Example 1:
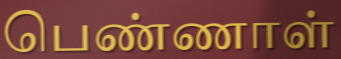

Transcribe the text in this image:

பெண்ணாள்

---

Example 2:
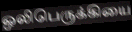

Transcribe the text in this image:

ஒலிபெருக்கியை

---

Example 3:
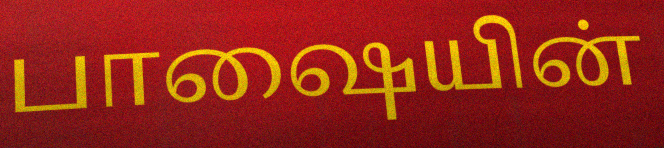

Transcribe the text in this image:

பாஷையின்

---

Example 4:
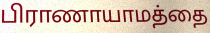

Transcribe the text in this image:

பிராணாயாமத்தை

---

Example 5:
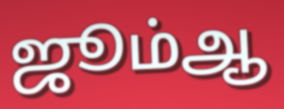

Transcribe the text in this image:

ஜூம்ஆ